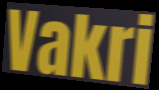
Vakri